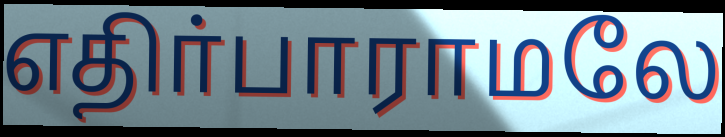
எதிர்பாராமலே